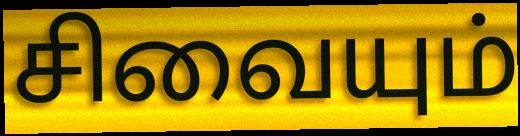
சிவையும்